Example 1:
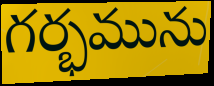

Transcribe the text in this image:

గర్భమును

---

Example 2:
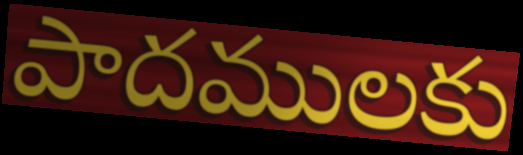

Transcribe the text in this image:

పాదములకు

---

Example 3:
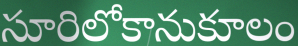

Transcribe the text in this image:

సూరిలోకానుకూలం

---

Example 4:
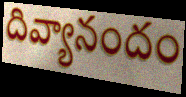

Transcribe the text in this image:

దివ్యానందం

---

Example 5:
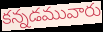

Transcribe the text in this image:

కన్నడమువారు